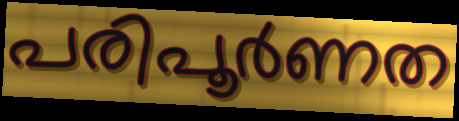
പരിപൂർണത